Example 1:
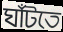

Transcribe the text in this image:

ঘাঁটতে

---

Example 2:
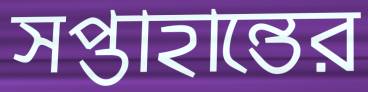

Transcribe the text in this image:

সপ্তাহান্তের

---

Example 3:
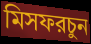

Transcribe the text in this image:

মিসফরচুন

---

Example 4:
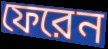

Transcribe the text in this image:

ফেরেন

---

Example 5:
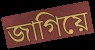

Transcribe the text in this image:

জাগিয়ে